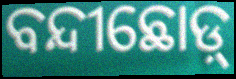
ବନ୍ଦୀଛୋଡ଼୍